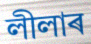
লীলাৰ